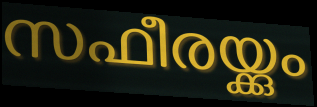
സഫീരയ്ക്കും